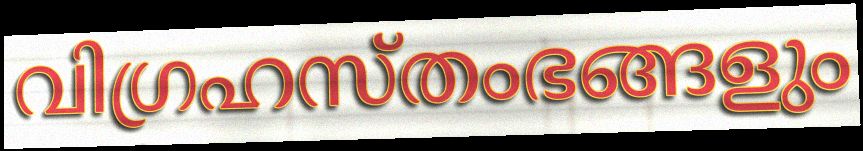
വിഗ്രഹസ്തംഭങ്ങളും